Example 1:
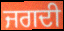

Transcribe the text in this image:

ਜਗਦੀ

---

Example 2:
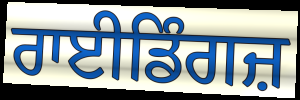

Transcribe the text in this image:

ਰਾਈਡਿੰਗਜ਼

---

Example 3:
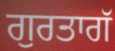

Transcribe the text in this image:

ਗੁਰਤਾਗੱ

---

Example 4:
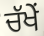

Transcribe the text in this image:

ਚੱਖੇਂ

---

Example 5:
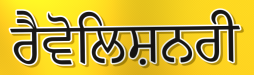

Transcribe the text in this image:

ਰੈਵੋਲਿਸ਼ਨਰੀ